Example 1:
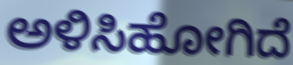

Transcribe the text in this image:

ಅಳಿಸಿಹೋಗಿದೆ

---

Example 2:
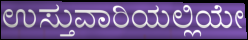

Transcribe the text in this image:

ಉಸ್ತುವಾರಿಯಲ್ಲಿಯೇ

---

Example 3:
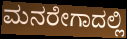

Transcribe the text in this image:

ಮನರೇಗಾದಲ್ಲಿ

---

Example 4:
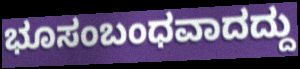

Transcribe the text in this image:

ಭೂಸಂಬಂಧವಾದದ್ದು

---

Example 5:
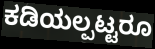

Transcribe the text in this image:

ಕಡಿಯಲ್ಪಟ್ಟರೂ